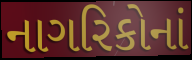
નાગરિકોનાં